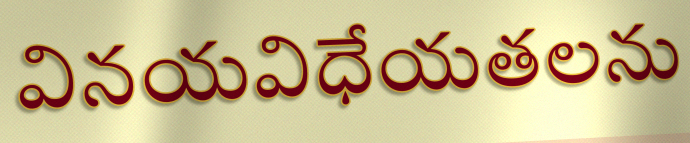
వినయవిధేయతలను